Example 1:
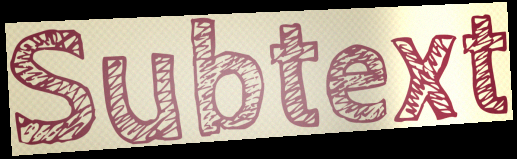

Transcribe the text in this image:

Subtext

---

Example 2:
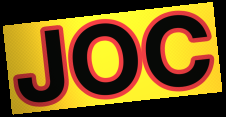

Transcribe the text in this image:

JOC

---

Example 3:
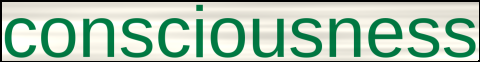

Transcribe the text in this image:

consciousness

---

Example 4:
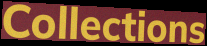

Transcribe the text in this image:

Collections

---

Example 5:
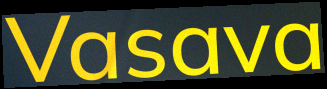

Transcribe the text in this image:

Vasava